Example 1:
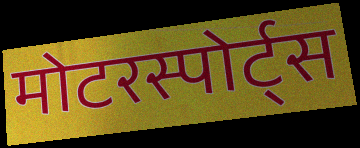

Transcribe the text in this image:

मोटरस्पोर्ट्स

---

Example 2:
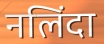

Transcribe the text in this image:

नलिंदा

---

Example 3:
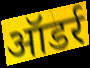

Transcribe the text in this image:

ऑडर्र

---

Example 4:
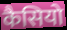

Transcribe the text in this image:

कैसियो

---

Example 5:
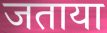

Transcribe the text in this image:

जताया